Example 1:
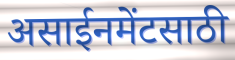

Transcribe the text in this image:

असाईनमेंटसाठी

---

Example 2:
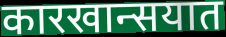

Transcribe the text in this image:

कारखान्सयात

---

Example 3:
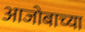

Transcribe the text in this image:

आजोबाच्या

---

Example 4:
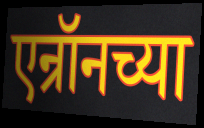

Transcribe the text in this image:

एन्रॉनच्या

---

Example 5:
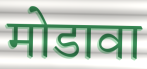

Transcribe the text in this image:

मोडावा